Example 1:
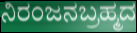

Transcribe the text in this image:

ನಿರಂಜನಬ್ರಹ್ಮದ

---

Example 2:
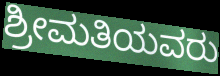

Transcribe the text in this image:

ಶ್ರೀಮತಿಯವರು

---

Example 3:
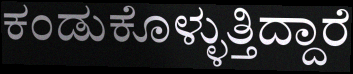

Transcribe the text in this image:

ಕಂಡುಕೊಳ್ಳುತ್ತಿದ್ದಾರೆ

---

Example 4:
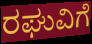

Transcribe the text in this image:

ರಘುವಿಗೆ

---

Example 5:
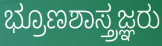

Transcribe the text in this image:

ಭ್ರೂಣಶಾಸ್ತ್ರಜ್ಞರು